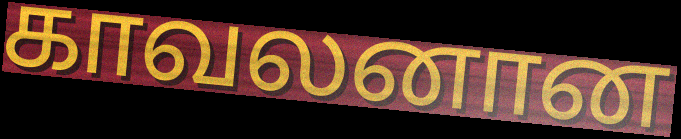
காவலனான